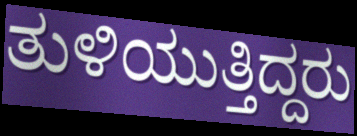
ತುಳಿಯುತ್ತಿದ್ದರು